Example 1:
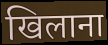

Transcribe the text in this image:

खिलाना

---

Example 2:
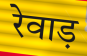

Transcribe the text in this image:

रेवाड़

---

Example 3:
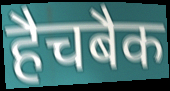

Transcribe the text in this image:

हैचबैक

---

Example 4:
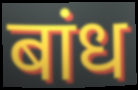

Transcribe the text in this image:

बांध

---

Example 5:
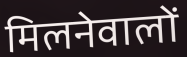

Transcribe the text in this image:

मिलनेवालों